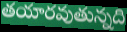
తయారవుతున్నది